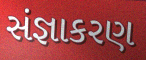
સંજ્ઞાકરણ